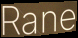
Rane